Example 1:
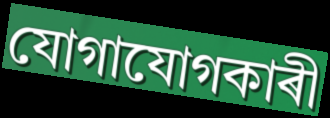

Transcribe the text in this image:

যোগাযোগকাৰী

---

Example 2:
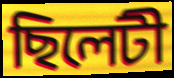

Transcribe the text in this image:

ছিলেটী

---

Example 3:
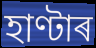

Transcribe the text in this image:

হাণ্টাৰ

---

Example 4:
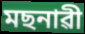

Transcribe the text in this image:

মছনাৱী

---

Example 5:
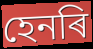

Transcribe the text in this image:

হেনৰি